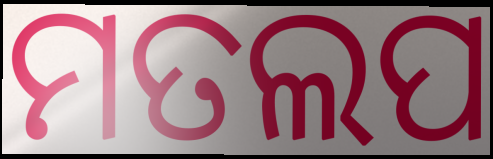
ମତଲପ